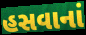
હસવાનાં